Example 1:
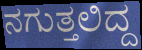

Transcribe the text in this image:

ನಗುತ್ತಲಿದ್ದ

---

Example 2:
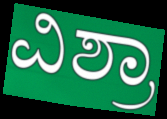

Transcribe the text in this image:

ವಿಶ್ರಾ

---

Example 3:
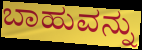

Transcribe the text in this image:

ಬಾಹುವನ್ನು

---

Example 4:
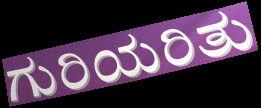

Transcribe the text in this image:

ಗುರಿಯರಿತು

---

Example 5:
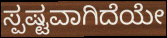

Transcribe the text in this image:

ಸ್ಪಷ್ಟವಾಗಿದೆಯೇ